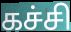
கச்சி